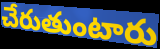
చేరుతుంటారు